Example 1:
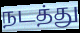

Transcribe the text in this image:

நடத்து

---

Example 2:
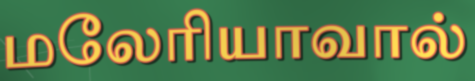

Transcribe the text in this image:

மலேரியாவால்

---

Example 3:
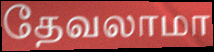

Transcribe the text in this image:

தேவலாமா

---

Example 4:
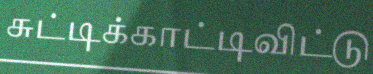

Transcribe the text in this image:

சுட்டிக்காட்டிவிட்டு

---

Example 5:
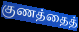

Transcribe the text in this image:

குணத்தைத்